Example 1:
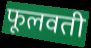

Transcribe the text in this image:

फूलवती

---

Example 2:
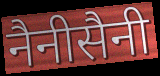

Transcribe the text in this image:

नैनीसैनी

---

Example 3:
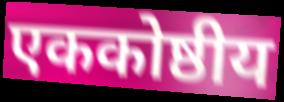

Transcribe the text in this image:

एककोष्ठीय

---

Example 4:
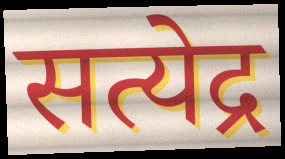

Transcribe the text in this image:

सत्येद्र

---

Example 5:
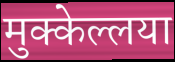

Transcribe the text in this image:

मुक्केल्लया